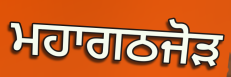
ਮਹਾਗਠਜੋੜ